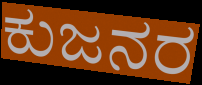
ಕುಜನರ